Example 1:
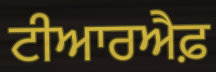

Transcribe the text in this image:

ਟੀਆਰਐਫ਼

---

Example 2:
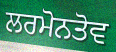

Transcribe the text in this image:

ਲਰਮੋਨਤੋਵ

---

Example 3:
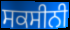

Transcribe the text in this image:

ਸਕਸੀਨੀ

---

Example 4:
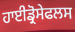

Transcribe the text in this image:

ਹਾਈਡ੍ਰੋਸੇਫਲਸ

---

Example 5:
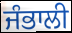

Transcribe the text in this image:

ਜੰਭਾਲੀ